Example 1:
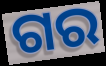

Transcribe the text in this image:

ଗର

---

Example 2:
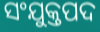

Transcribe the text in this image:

ସଂଯୁକ୍ତପଦ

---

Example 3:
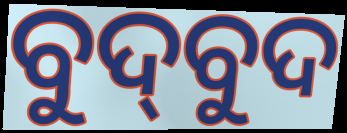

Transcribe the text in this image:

ବୁଦ୍‌ବୁଦ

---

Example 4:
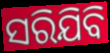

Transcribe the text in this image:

ସରିଯିବି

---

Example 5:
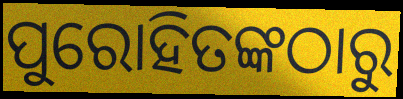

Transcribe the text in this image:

ପୁରୋହିତଙ୍କଠାରୁ